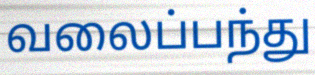
வலைப்பந்து